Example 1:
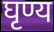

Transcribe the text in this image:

घृण्य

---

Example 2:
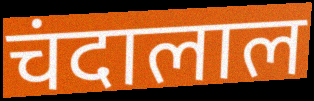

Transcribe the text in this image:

चंदालाल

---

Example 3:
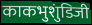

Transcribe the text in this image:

काकभुशुंडिजी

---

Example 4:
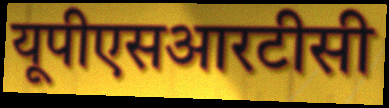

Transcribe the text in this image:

यूपीएसआरटीसी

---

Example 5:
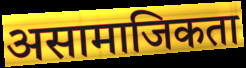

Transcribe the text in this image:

असामाजिकता